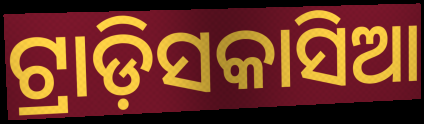
ଟ୍ରାଡ଼ିସକାସିଆ